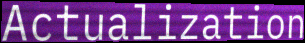
Actualization